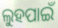
ଲୁହପାଇଁ